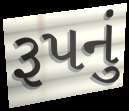
રૂપનું